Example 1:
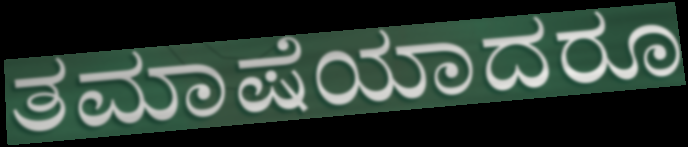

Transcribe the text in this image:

ತಮಾಷೆಯಾದರೂ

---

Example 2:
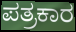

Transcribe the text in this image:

ಪತ್ರಕಾರ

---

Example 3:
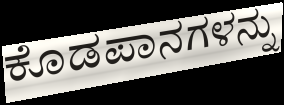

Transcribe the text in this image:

ಕೊಡಪಾನಗಳನ್ನು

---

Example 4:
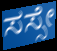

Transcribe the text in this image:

ಸಸ್ಸೇ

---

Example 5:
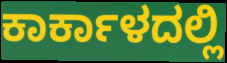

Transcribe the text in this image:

ಕಾರ್ಕಾಳದಲ್ಲಿ